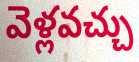
వెళ్లవచ్చు